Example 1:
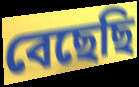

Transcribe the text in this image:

বেছেছি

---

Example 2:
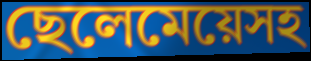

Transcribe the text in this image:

ছেলেমেয়েসহ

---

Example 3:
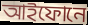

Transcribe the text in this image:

আইফোনে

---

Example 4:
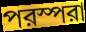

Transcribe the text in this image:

পরস্পরা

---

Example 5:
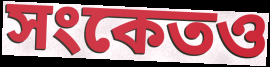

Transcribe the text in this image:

সংকেতও